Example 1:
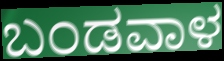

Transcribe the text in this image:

ಬಂಡವಾಳ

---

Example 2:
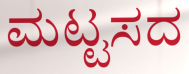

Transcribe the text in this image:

ಮಟ್ಟಸದ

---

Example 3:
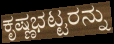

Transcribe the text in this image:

ಕೃಷ್ಣಭಟ್ಟರನ್ನು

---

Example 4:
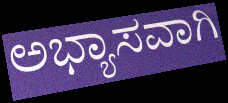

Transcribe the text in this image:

ಅಭ್ಯಾಸವಾಗಿ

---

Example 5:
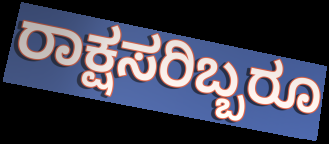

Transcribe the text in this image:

ರಾಕ್ಷಸರಿಬ್ಬರೂ